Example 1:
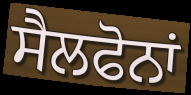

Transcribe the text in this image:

ਸੈਲਫੋਨਾਂ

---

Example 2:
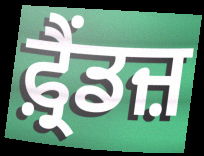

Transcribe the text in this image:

ਫ਼੍ਰੈਂਡਜ਼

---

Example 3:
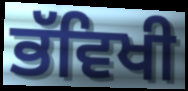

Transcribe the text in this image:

ਭੱਵਿਖੀ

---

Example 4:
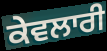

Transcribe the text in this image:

ਕੇਵਲਾਰੀ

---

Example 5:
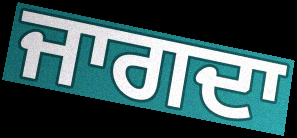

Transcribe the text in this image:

ਜਾਗਦਾ